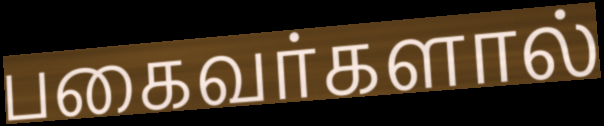
பகைவர்களால்